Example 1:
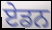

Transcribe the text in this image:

ਏਡਨ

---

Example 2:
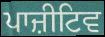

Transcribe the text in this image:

ਪਾਜ਼ੀਟਿਵ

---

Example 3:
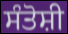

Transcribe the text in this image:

ਸੰਤੋਸ਼ੀ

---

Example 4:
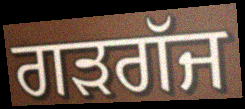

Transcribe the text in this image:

ਗਡ਼ਗੱਜ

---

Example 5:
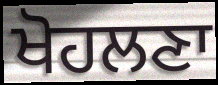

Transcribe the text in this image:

ਖੋਹਲਣਾ